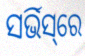
ସର୍ଭିସ୍‌ରେ